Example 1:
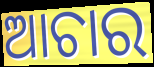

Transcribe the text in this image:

ଆଚାର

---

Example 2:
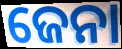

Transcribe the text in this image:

ଜେନା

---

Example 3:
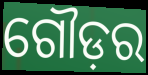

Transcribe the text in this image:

ଗୌଡ଼ର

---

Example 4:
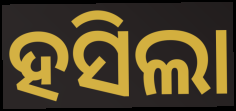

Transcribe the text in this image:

ହସିଲା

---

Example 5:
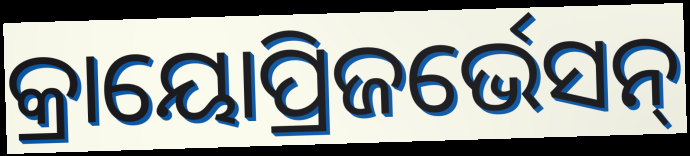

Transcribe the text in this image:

କ୍ରାୟୋପ୍ରିଜର୍ଭେସନ୍